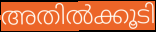
അതിൽക്കൂടി